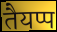
तैयप्प